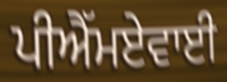
ਪੀਐੱਮਏਵਾਈ